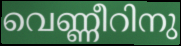
വെണ്ണീറിനു